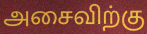
அசைவிற்கு